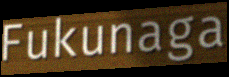
Fukunaga